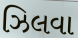
ઝિલવા